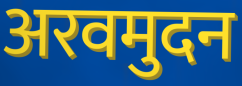
अरवमुदन